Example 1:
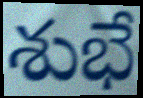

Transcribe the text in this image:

శుభే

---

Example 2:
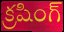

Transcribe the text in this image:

క్రషింగ్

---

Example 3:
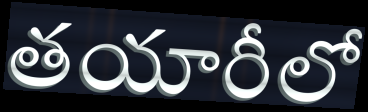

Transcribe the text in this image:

తయారీలో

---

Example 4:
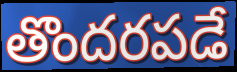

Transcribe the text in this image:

తొందరపడే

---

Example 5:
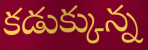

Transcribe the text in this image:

కడుక్కున్న